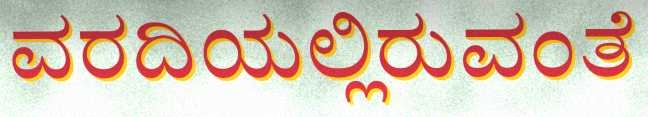
ವರದಿಯಲ್ಲಿರುವಂತೆ